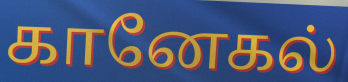
கானேகல்